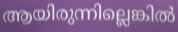
ആയിരുന്നില്ലെങ്കിൽ